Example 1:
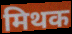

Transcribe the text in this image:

मिथक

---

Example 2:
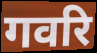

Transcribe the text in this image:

गवरि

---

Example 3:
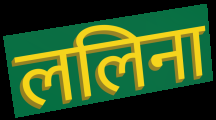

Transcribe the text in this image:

ललिना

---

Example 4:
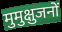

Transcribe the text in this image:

मुमुक्षुजनों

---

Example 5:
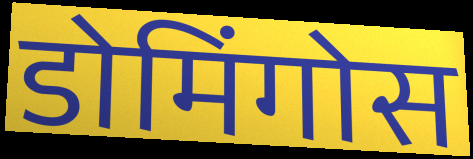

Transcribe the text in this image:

डोमिंगोस